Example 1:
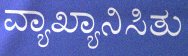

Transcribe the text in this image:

ವ್ಯಾಖ್ಯಾನಿಸಿತು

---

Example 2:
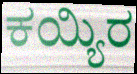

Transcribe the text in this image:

ಕಯ್ಯಿರ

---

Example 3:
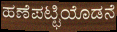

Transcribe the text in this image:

ಹಣೆಪಟ್ಟಿಯೊಡನೆ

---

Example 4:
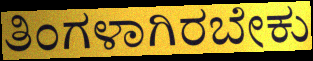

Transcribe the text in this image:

ತಿಂಗಳಾಗಿರಬೇಕು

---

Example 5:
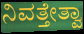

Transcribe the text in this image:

ನಿವತ್ತೇತ್ವಾ